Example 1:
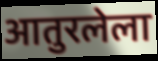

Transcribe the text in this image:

आतुरलेला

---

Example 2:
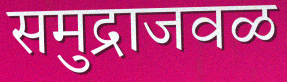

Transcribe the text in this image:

समुद्राजवळ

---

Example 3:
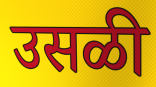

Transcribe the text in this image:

उसळी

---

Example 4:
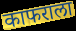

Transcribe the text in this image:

काफराला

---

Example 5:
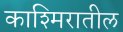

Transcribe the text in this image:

काश्मिरातील